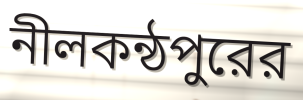
নীলকন্ঠপুরের